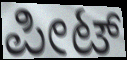
ಪೀಟ್